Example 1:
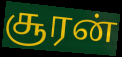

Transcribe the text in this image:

சூரன்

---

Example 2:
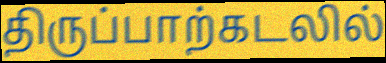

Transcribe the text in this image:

திருப்பாற்கடலில்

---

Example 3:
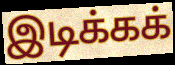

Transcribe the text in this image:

இடிக்கக்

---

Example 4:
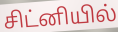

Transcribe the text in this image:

சிட்னியில்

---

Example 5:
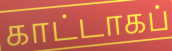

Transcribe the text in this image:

காட்டாகப்